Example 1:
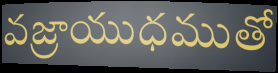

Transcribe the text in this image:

వజ్రాయుధముతో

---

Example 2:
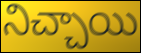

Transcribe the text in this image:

నిచ్చాయి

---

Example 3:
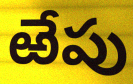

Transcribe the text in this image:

ఱేపు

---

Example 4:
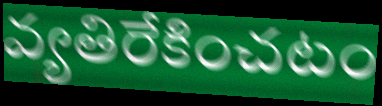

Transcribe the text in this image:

వ్యతిరేకించటం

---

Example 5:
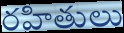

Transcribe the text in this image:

రహితులు